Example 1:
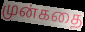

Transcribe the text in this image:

முன்கதை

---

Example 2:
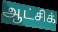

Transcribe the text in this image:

ஆட்சிக்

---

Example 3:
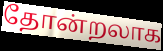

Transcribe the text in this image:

தோன்றலாக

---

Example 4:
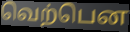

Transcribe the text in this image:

வெற்பென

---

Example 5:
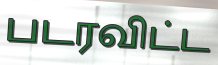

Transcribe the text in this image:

படரவிட்ட